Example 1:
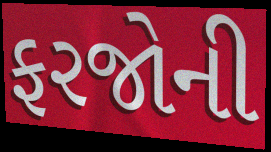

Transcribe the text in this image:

ફરજોની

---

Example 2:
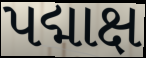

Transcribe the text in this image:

પદ્માક્ષ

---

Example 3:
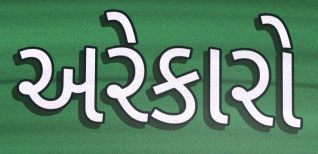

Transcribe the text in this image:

અરેકારો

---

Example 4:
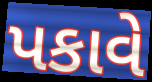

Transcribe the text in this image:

પકાવે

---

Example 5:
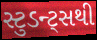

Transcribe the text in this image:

સ્ટુડન્ટ્સથી